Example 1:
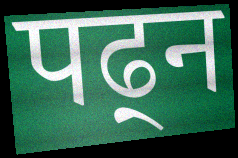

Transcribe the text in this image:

पढ्न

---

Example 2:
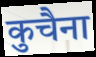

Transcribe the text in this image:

कुचैना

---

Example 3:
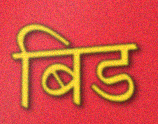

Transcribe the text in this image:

बिड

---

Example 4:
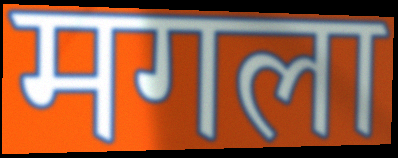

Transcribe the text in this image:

मगला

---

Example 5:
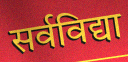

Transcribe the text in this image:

सर्वविद्या